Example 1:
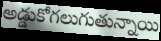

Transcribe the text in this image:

అడ్డుకోగలుగుతున్నాయి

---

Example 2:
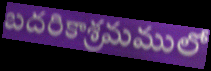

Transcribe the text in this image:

బదరికాశ్రమములో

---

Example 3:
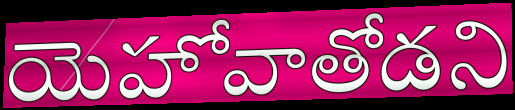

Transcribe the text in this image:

యెహోవాతోడని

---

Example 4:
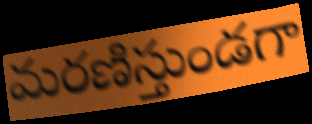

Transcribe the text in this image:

మరణిస్తుండగా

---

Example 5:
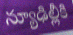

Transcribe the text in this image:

న్యూఢిల్లీకి